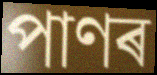
পাণৰ